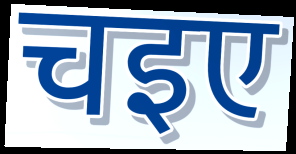
चइए